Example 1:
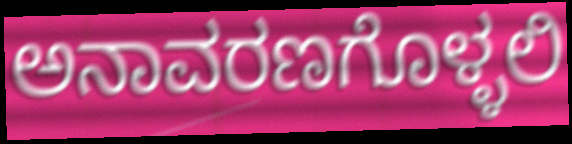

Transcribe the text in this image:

ಅನಾವರಣಗೊಳ್ಳಲಿ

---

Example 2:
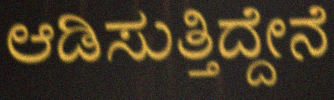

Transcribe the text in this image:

ಆಡಿಸುತ್ತಿದ್ದೇನೆ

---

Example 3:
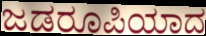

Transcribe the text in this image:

ಜಡರೂಪಿಯಾದ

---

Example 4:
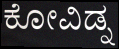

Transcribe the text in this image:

ಕೋವಿಡ್ನ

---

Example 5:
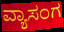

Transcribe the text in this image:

ವ್ಯಾಸಂಗ